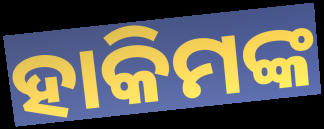
ହାକିମଙ୍କ